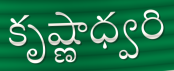
కృష్ణాధ్వరి